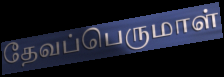
தேவப்பெருமாள்